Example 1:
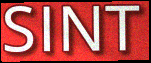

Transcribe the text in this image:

SINT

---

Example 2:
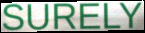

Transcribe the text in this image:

SURELY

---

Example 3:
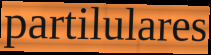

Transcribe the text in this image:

partilulares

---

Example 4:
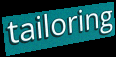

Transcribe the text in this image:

tailoring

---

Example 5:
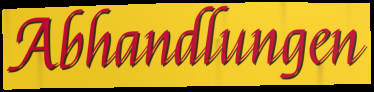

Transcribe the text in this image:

Abhandlungen